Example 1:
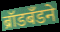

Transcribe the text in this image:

ब्रॉडबँडने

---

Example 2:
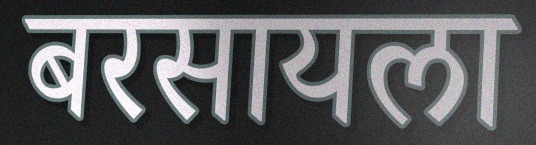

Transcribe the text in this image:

बरसायला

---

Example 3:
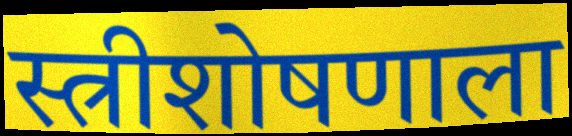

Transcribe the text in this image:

स्त्रीशोषणाला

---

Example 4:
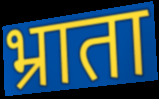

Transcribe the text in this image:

भ्राता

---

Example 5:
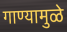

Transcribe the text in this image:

गाण्यामुळे